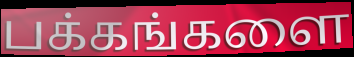
பக்கங்களை